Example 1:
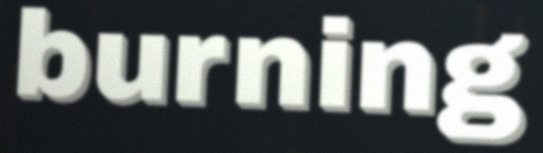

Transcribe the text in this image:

burning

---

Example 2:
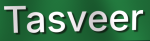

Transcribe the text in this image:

Tasveer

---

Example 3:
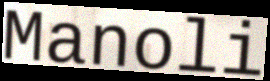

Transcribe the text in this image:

Manoli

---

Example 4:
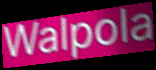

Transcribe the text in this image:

Walpola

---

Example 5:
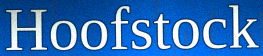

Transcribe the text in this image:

Hoofstock